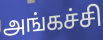
அங்கச்சி